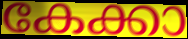
കേക്കാ